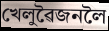
খেলুৱৈজনলৈ